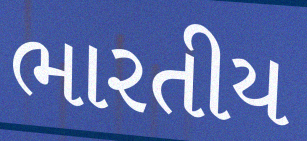
ભારતીય